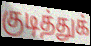
குடித்துக்